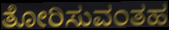
ತೋರಿಸುವಂತಹ